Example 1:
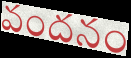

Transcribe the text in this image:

వందనం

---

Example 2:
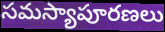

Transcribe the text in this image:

సమస్యాపూరణలు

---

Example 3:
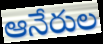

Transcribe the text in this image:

ఆనేరుల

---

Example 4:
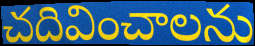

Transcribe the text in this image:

చదివించాలను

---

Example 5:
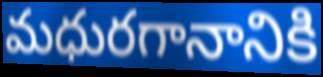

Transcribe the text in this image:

మధురగానానికి